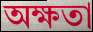
অক্ষতা